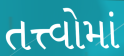
તત્ત્વોમાં